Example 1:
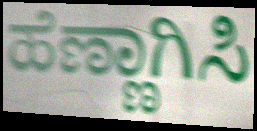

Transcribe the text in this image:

ಹೆಣ್ಣಾಗಿಸಿ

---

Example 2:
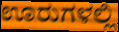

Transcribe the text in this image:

ಊರುಗಳಲ್ಲಿ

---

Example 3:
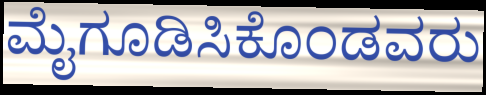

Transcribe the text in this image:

ಮೈಗೂಡಿಸಿಕೊಂಡವರು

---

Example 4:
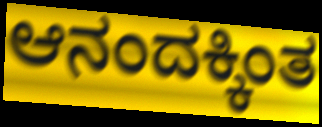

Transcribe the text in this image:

ಆನಂದಕ್ಕಿಂತ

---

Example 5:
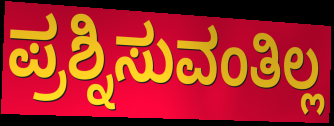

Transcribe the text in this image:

ಪ್ರಶ್ನಿಸುವಂತಿಲ್ಲ